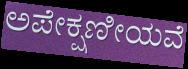
ಅಪೇಕ್ಷಣೀಯವೆ